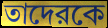
তাদেরকে